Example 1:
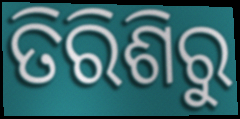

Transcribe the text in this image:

ତିରିଶିରୁ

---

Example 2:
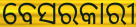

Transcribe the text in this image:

ବେସରକାରୀ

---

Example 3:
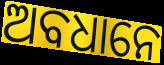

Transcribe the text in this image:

ଅବଧାନେ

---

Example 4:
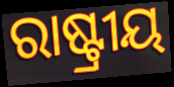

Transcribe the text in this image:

ରାଷ୍ଟ୍ରୀୟ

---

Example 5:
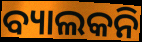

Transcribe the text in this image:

ବ୍ୟାଲକନି